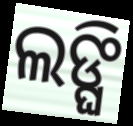
ଲଙ୍ଘି